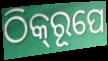
ଠିକ୍‌ରୂପେ